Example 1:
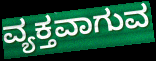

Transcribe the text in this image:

ವ್ಯಕ್ತವಾಗುವ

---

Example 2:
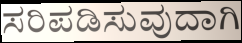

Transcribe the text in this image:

ಸರಿಪಡಿಸುವುದಾಗಿ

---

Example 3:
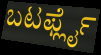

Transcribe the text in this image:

ಬಟರ್ಫ್ಲೈ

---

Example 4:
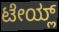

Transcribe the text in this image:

ಟೇಯ್ಲ್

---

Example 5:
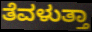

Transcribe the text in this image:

ತೆವಳುತ್ತಾ